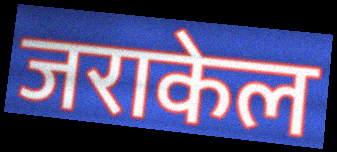
जराकेल